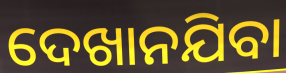
ଦେଖାନଯିବା